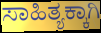
ಸಾಹಿತ್ಯಕ್ಕಾಗಿ